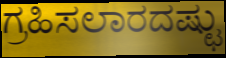
ಗ್ರಹಿಸಲಾರದಷ್ಟು